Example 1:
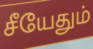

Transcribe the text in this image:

சீயேதும்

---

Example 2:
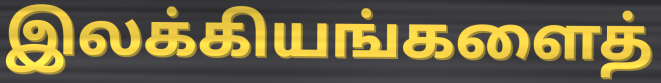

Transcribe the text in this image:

இலக்கியங்களைத்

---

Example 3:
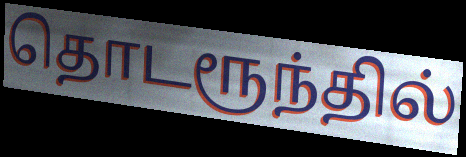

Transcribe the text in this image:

தொடரூந்தில்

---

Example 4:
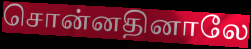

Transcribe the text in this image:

சொன்னதினாலே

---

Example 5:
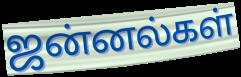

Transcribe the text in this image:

ஜன்னல்கள்